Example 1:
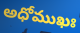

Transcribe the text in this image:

అధోముఖః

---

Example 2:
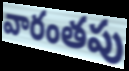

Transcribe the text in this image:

వారంతపు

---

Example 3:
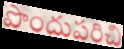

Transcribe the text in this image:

పొందుపరిచి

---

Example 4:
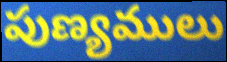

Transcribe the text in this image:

పుణ్యములు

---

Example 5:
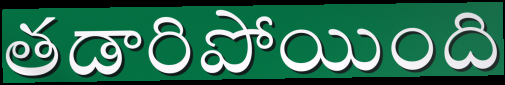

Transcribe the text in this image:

తడారిపోయింది